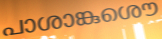
പാശാങ്കുശൌ